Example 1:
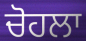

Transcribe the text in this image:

ਚੋਹਲਾ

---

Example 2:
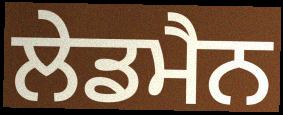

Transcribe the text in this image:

ਲੇਡਮੈਨ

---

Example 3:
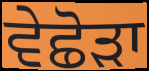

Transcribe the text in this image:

ਵੇਛੋੜਾ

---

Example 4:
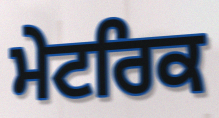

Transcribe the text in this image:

ਮੇਟਰਿਕ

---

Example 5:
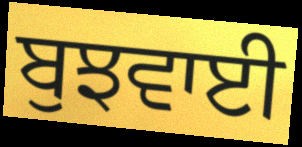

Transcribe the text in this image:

ਬੁਝਵਾਈ